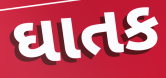
ઘાતક